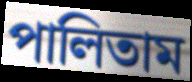
পালিতাম